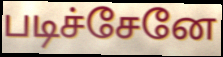
படிச்சேனே